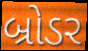
બ્રોડર